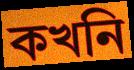
কখনি